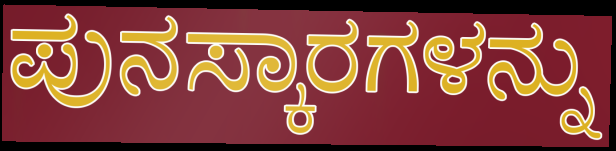
ಪುನಸ್ಕಾರಗಳನ್ನು